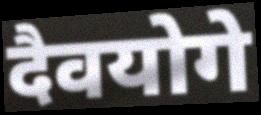
दैवयोगे